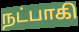
நட்பாகி